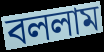
বললাম